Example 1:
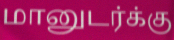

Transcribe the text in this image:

மானுடர்க்கு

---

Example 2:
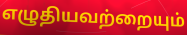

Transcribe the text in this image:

எழுதியவற்றையும்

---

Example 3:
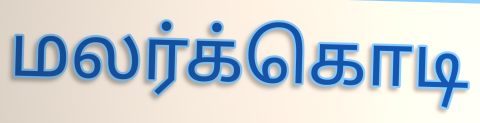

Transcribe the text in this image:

மலர்க்கொடி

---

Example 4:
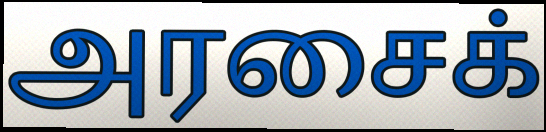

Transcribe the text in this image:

அரசைக்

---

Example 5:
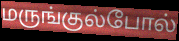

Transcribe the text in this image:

மருங்குல்போல்